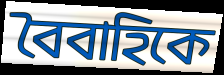
বৈবাহিকে